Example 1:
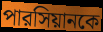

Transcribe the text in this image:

পারসিয়ানকে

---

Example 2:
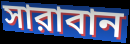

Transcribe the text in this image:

সারাবান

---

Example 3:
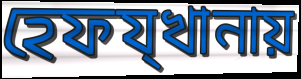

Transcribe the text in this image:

হেফয্খানায়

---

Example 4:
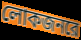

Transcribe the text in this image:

লোকজনরে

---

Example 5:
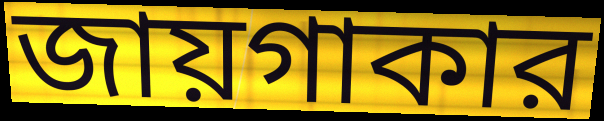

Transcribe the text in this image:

জায়গাকার